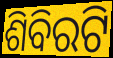
ଶିବିରଟି